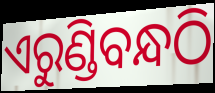
ଏରୁଣ୍ଡିବନ୍ଧଠି